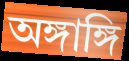
অঙ্গাঙ্গি